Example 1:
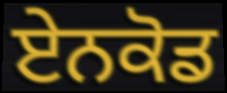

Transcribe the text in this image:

ਏਨਕੋਡ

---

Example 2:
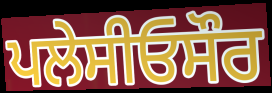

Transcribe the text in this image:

ਪਲੇਸੀਓਸੌਰ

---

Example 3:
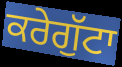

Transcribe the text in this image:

ਕਰੇਗੁੱਟਾ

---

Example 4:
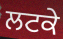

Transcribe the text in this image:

ਲਟਕੇ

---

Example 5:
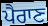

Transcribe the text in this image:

ਪੈਰਾਣ